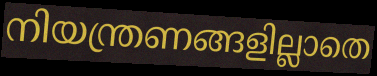
നിയന്ത്രണങ്ങളില്ലാതെ